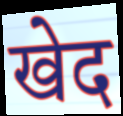
खेद